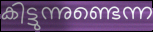
കിട്ടുന്നുണ്ടെന്ന